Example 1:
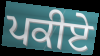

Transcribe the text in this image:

ਪਕੀਏ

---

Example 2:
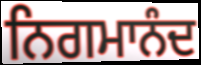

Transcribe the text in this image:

ਨਿਗਮਾਨੰਦ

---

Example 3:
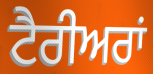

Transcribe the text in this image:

ਟੈਰੀਅਰਾਂ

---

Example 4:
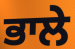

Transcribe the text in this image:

ਭਾਲੇ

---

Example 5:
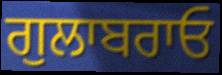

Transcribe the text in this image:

ਗੁਲਾਬਰਾਓ